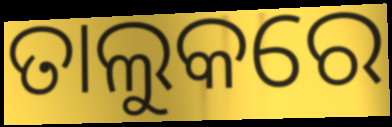
ତାଲୁକରେ